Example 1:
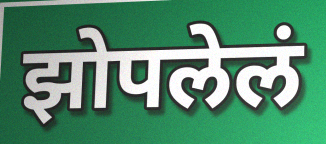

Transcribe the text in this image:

झोपलेलं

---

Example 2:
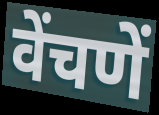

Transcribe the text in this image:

वेंचणें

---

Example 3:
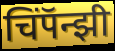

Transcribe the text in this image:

चिंपॅन्झी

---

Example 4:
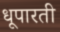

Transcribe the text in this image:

धूपारती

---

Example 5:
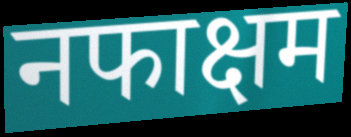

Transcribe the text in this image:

नफाक्षम